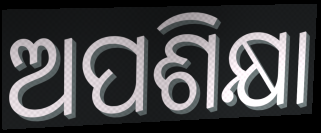
ଅପଶିକ୍ଷା